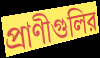
প্রাণীগুলির